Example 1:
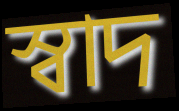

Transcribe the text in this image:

স্বাদ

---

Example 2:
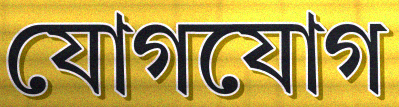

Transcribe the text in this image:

যোগযোগ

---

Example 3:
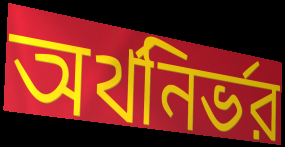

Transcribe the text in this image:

অর্থনির্ভর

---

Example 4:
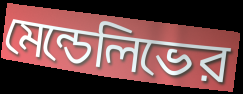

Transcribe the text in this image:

মেন্ডেলিভের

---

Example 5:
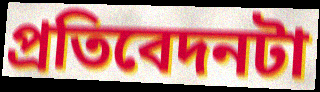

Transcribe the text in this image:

প্রতিবেদনটা